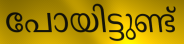
പോയിട്ടുണ്ട്